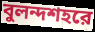
বুলন্দশহরে